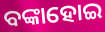
ବଙ୍କାହୋଇ